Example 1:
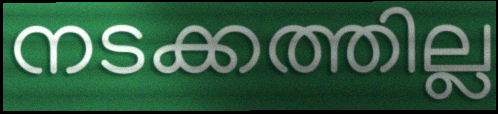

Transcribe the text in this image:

നടക്കത്തില്ല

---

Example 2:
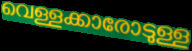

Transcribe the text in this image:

വെള്ളക്കാരോടുള്ള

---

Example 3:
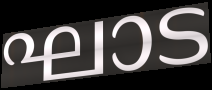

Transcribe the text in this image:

ഘാട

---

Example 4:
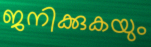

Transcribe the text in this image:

ജനിക്കുകയും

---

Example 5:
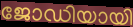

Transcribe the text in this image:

ജോഡിയായി